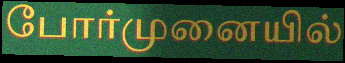
போர்முனையில்